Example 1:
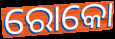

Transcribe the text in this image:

ରୋକୋ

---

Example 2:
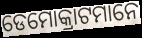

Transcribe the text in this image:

ଡେମୋକ୍ରାଟମାନେ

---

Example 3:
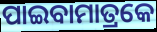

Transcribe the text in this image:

ପାଇବାମାତ୍ରକେ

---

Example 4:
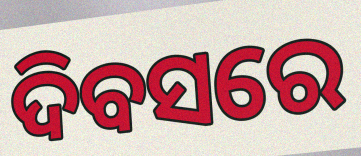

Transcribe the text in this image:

ଦିବସରେ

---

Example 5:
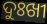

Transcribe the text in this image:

ଦୁଃଖୀ